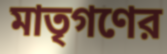
মাতৃগণের